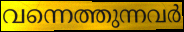
വന്നെത്തുന്നവർ